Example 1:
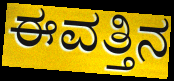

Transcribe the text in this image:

ಈವತ್ತಿನ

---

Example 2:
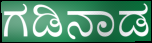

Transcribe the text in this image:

ಗಡಿನಾಡ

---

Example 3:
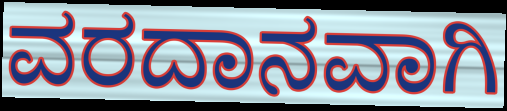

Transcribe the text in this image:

ವರದಾನವಾಗಿ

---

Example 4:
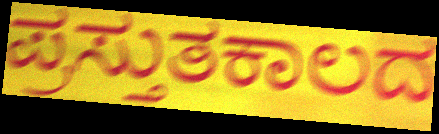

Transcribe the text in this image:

ಪ್ರಸ್ತುತಕಾಲದ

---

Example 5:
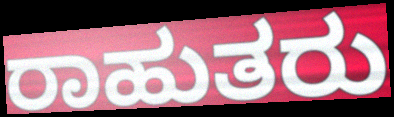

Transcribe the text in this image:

ರಾಹುತರು